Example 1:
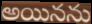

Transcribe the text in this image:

అయినను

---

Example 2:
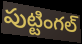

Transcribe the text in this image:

పుట్టింగల్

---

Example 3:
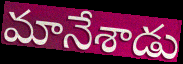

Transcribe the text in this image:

మానేశాడు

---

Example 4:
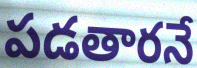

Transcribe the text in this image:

పడతారనే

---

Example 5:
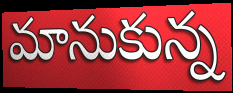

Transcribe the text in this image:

మానుకున్న